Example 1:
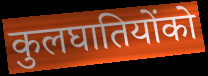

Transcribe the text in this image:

कुलघातियोंको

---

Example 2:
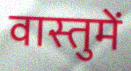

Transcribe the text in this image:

वास्तुमें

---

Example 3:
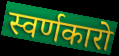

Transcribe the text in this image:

स्वर्णकारो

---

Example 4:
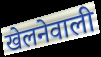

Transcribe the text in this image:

खेलनेवाली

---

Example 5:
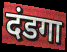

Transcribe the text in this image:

दंडगा